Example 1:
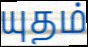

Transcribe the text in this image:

யுதம்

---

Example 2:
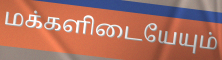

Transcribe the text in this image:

மக்களிடையேயும்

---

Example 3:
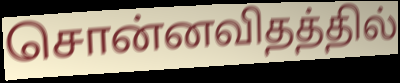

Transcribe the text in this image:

சொன்னவிதத்தில்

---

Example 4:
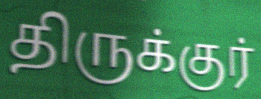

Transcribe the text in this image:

திருக்குர்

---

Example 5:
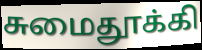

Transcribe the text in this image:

சுமைதூக்கி